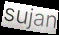
sujan